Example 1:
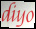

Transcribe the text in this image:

diyo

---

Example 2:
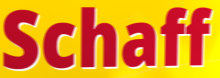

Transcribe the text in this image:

Schaff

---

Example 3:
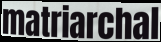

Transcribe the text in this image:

matriarchal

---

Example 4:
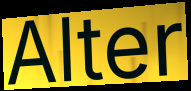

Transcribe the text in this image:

Alter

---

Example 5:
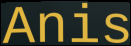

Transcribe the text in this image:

Anis